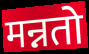
मन्नतो